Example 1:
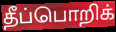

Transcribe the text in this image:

தீப்பொறிக்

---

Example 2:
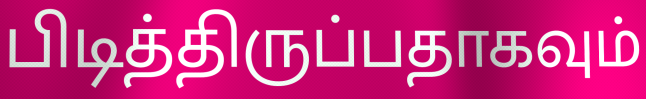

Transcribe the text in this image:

பிடித்திருப்பதாகவும்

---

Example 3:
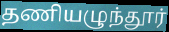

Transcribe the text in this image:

தணியழுந்தூர்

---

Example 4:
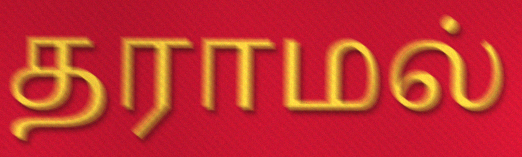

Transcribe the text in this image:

தராமல்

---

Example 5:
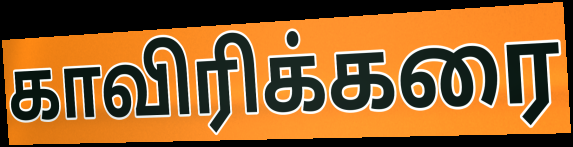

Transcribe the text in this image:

காவிரிக்கரை